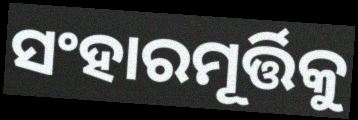
ସଂହାରମୂର୍ତ୍ତିକୁ